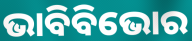
ଭାବିବିଭୋର